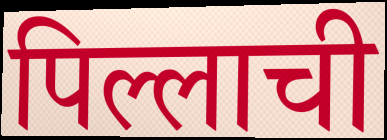
पिल्लाची